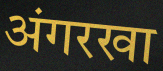
अंगरखा